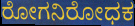
ರೋಗನಿರೋಧಕ